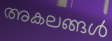
അകലങ്ങൾ